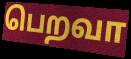
பெறவா